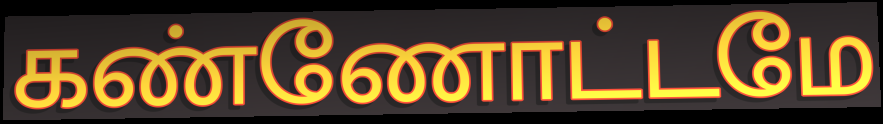
கண்ணோட்டமே